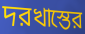
দরখাস্তের